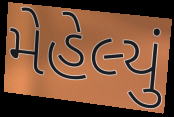
મેહેલ્યું